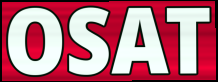
OSAT